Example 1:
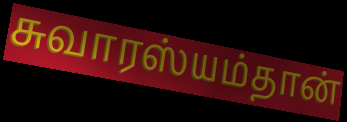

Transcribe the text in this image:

சுவாரஸ்யம்தான்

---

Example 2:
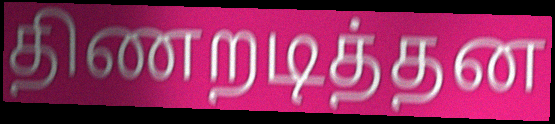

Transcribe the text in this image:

திணறடித்தன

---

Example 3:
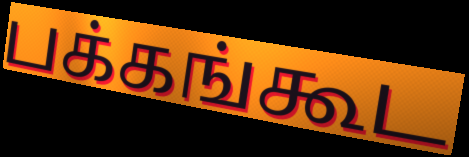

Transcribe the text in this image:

பக்கங்கூட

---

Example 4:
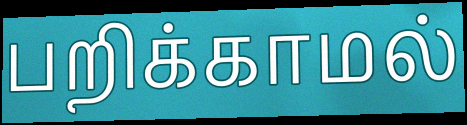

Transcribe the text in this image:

பறிக்காமல்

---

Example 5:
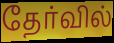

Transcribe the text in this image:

தேர்வில்